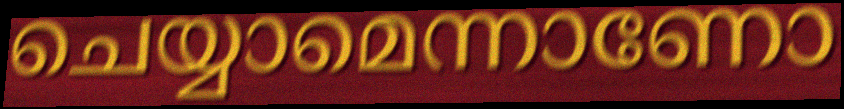
ചെയ്യാമെന്നാണോ